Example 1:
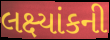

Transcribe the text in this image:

લક્ષ્યાંકની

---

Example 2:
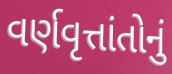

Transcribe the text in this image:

વર્ણવૃત્તાંતોનું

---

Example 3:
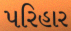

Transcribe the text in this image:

પરિહાર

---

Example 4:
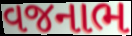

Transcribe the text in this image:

વજનાભ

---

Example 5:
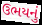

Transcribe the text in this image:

ઉભયનું